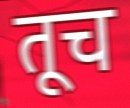
तूच